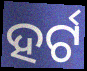
ହର୍ଟ